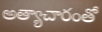
అత్యాచారంతో